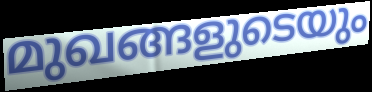
മുഖങ്ങളുടെയും